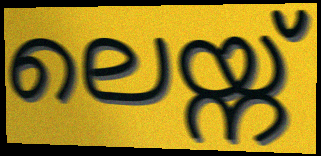
ലെയ്ന്